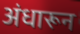
अंधारून